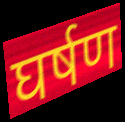
घर्षण